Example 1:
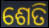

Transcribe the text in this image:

ଶେତି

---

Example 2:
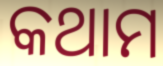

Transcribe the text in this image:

କଥାମ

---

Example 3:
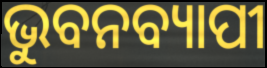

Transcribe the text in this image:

ଭୁବନବ୍ୟାପୀ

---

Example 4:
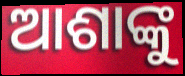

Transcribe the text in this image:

ଆଶାଙ୍କୁ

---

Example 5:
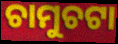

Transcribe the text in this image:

ଚାମୁଚଟା